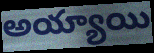
అయ్యాయి